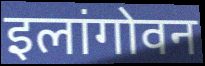
इलांगोवन